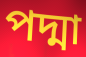
পদ্মা